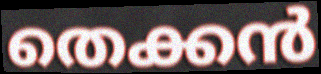
തെക്കൻ